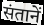
संतानें